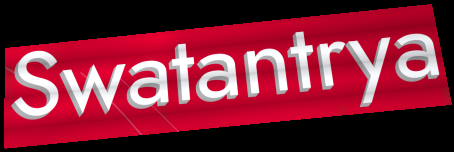
Swatantrya